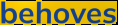
behoves